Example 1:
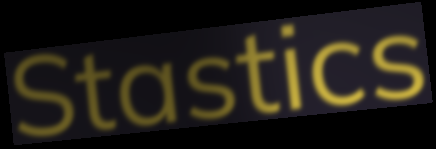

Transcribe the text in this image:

Stastics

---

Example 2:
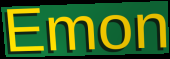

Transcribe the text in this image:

Emon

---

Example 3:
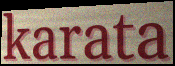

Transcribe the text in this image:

karata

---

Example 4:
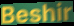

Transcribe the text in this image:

Beshir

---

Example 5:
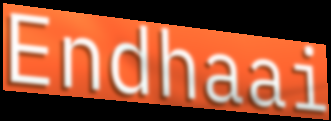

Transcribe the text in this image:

Endhaai